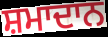
ਸ਼ਮਾਦਾਨ